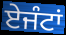
ਏਜੰਟਾਂ